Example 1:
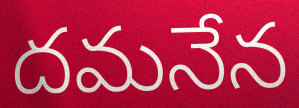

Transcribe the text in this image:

దమనేన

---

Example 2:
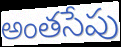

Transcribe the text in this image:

అంతసేపు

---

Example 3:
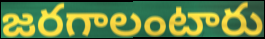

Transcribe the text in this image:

జరగాలంటారు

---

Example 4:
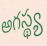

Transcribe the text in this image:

అగస్థ్య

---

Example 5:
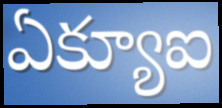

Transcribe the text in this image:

ఏక్యూఐ